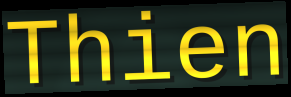
Thien